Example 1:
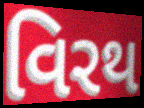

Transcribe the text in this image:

વિરથ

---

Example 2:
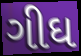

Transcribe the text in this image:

ગીઘ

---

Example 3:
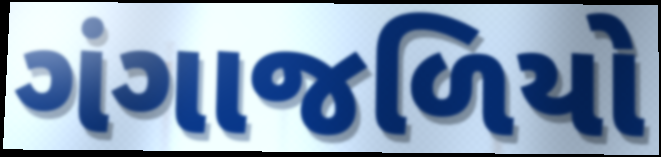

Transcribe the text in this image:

ગંગાજળિયો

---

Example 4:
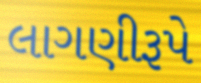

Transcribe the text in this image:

લાગણીરૂપે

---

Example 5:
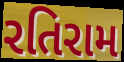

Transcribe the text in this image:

રતિરામ